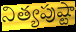
నిత్యపుష్టా